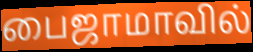
பைஜாமாவில்